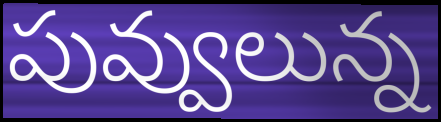
పువ్వులున్న